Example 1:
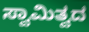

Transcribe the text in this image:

ಸ್ವಾಮಿತ್ವದ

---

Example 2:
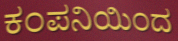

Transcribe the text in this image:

ಕಂಪನಿಯಿಂದ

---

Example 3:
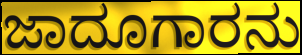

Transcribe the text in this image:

ಜಾದೂಗಾರನು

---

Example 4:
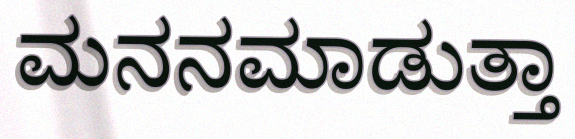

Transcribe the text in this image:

ಮನನಮಾಡುತ್ತಾ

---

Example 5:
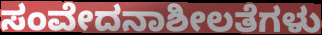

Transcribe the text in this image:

ಸಂವೇದನಾಶೀಲತೆಗಳು